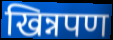
खिन्नपण